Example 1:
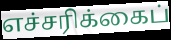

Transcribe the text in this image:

எச்சரிக்கைப்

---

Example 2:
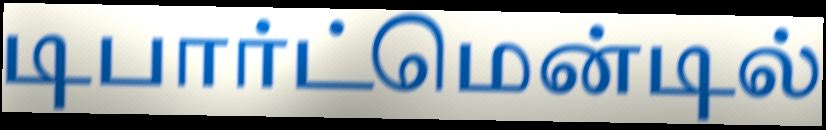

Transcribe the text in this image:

டிபார்ட்மென்டில்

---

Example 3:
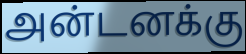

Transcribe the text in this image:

அன்டனக்கு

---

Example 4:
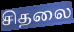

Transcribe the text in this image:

சிதலை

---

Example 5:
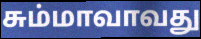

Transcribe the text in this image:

சும்மாவாவது